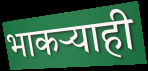
भाकऱ्याही